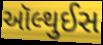
ઑલ્થુઈસ